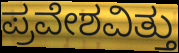
ಪ್ರವೇಶವಿತ್ತು